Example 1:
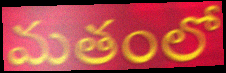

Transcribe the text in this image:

మతంలో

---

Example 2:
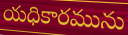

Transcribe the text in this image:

యధికారమును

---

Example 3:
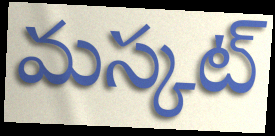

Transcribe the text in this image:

మస్కట్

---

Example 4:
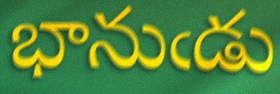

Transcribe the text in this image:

భానుఁడు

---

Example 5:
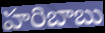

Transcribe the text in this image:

హరిబాబు